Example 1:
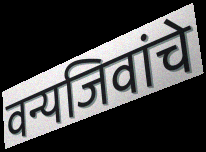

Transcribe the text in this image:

वन्यजिवांचे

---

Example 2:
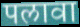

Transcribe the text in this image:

पलावा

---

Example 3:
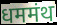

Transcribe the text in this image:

धममंथ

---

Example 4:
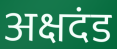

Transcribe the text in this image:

अक्षदंड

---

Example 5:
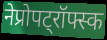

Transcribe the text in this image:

नेप्रोपट्रॉफ्स्क